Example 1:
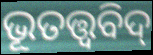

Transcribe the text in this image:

ଭୂତତ୍ତ୍ବବିଦ୍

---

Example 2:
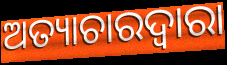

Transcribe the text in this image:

ଅତ୍ୟାଚାରଦ୍ୱାରା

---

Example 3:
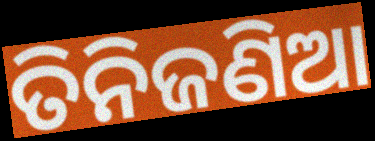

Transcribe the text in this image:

ତିନିଜଣିଆ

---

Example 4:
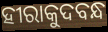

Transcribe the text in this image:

ହୀରାକୁଦବନ୍ଧ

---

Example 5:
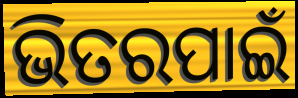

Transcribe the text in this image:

ଭିତରପାଇଁ